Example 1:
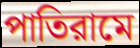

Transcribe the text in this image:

পাতিরামে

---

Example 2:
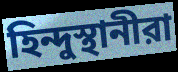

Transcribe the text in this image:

হিন্দুস্থানীরা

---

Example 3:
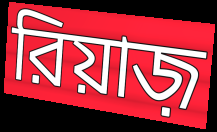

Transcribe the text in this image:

রিয়াজ়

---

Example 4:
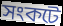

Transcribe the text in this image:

সংকটে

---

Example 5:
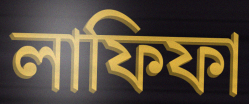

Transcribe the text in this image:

লাফিফা